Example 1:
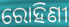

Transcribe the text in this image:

ରୋହିଣୀ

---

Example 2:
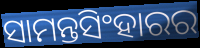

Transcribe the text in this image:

ସାମନ୍ତସିଂହାରର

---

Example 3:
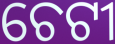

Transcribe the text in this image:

ଚେଟୀ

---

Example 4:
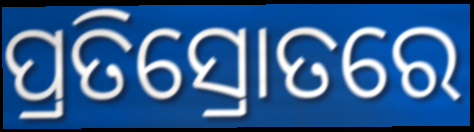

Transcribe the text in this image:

ପ୍ରତିସ୍ରୋତରେ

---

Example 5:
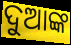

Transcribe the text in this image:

ଦୁଆଙ୍କ